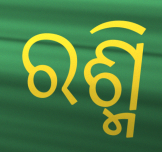
ରଶ୍ମି